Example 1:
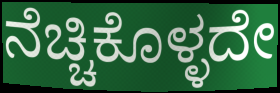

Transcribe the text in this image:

ನೆಚ್ಚಿಕೊಳ್ಳದೇ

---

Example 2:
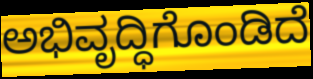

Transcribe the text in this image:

ಅಭಿವೃದ್ಧಿಗೊಂಡಿದೆ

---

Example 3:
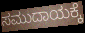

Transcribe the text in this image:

ಸಮುದಾಯಕ್ಕೆ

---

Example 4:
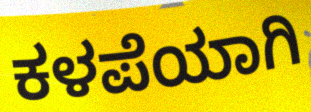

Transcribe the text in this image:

ಕಳಪೆಯಾಗಿ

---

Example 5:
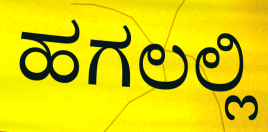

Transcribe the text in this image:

ಹಗಲಲ್ಲಿ